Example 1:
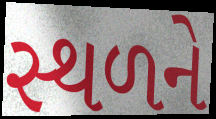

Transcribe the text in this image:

સ્‍થળને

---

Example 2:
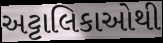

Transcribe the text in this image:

અટ્ટાલિકાઓથી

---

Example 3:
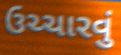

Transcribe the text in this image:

ઉચ્ચારવું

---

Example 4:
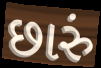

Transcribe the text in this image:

છારું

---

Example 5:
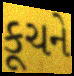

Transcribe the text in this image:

કૂચને